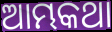
ଆମ୍ଭକଥା